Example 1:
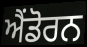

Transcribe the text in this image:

ਐਂਡੋਰਨ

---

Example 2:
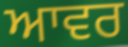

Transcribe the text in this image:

ਆਵਰ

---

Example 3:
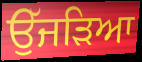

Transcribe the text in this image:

ਉੱਜੜਿਆ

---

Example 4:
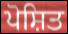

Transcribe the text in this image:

ਪੋਸ਼ਿਤ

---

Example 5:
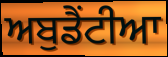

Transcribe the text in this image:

ਅਬੁਡੈਂਟੀਆ